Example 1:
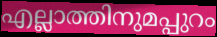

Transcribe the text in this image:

എല്ലാത്തിനുമപ്പുറം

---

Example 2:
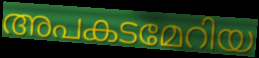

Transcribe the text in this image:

അപകടമേറിയ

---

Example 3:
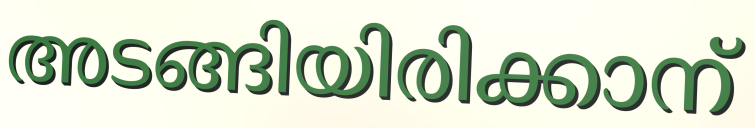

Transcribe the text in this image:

അടങ്ങിയിരിക്കാന്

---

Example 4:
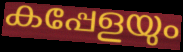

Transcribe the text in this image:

കപ്പേളയും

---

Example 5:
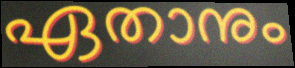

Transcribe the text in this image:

ഏതാനും